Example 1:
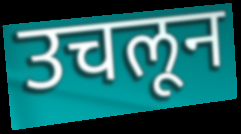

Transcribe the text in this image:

उचलून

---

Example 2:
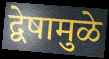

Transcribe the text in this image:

द्वेषामुळे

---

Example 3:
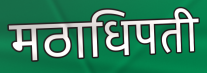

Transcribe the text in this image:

मठाधिपती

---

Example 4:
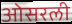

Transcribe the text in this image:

ओसरली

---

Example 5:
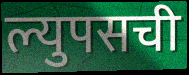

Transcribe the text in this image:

ल्युपसची